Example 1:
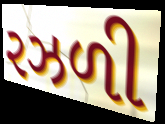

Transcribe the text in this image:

રઝળી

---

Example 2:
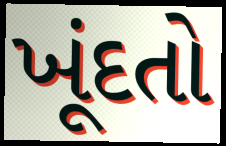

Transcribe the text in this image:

ખૂંદતો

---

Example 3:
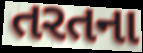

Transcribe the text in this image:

તરતના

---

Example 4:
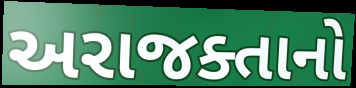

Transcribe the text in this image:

અરાજક્તાનો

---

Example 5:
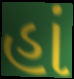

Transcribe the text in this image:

હાં